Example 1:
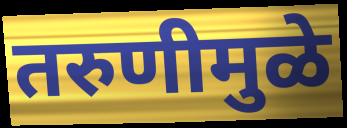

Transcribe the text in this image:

तरुणीमुळे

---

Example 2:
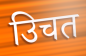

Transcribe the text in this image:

उिचत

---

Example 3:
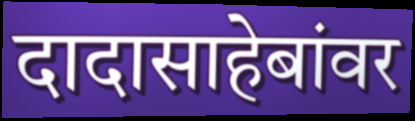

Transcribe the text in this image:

दादासाहेबांवर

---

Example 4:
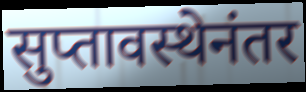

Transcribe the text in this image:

सुप्तावस्थेनंतर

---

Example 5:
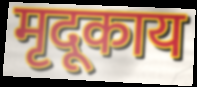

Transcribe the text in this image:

मृदूकाय